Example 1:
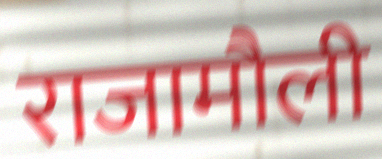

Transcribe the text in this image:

राजामौली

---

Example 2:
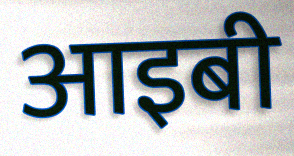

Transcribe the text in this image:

आइबी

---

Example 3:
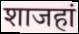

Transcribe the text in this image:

शाजहां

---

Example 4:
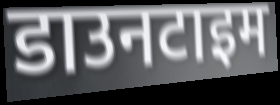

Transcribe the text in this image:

डाउनटाइम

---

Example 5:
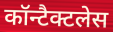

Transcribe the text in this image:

कॉन्टैक्टलेस